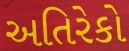
અતિરેકો